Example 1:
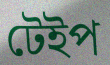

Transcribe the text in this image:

টেইপ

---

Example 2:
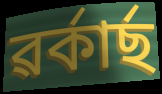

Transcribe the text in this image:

ৱৰ্কাৰ্ছ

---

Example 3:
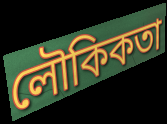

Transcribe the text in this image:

লৌকিকতা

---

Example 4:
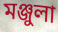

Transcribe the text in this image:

মঞ্জুলা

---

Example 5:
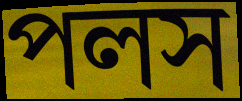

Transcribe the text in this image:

পলস